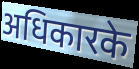
अधिकारके